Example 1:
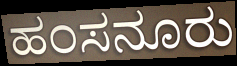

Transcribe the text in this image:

ಹಂಸನೂರು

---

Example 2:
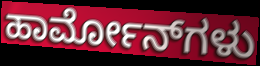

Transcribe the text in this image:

ಹಾರ್ಮೋನ್‌ಗಳು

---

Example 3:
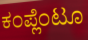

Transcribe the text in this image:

ಕಂಪ್ಲೆಂಟೂ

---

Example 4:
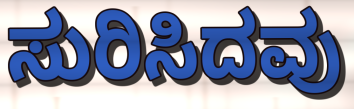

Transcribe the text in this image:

ಸುರಿಸಿದವು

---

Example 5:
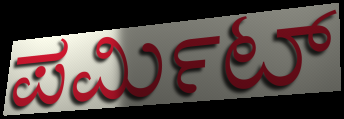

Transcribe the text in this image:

ಪರ್ಮಿಟ್